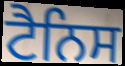
ਟੈਨਿਸ